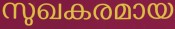
സുഖകരമായ